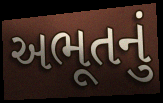
અભૂતનું